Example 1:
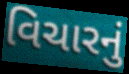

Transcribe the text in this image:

વિચારનું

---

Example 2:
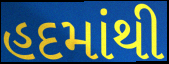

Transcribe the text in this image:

હદમાંથી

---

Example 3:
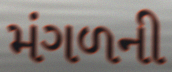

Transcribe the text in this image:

મંગળની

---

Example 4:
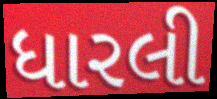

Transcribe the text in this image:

ધારલી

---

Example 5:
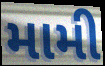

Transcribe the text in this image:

મામી